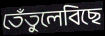
তেঁতুলেবিছে